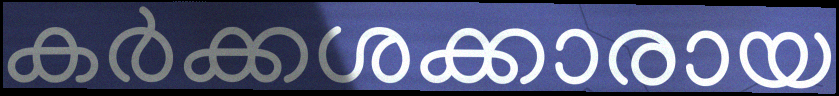
കർക്കശക്കാരായ